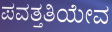
ಪವತ್ತತಿಯೇವ